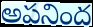
అపనింద